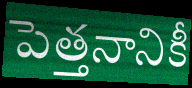
పెత్తనానికీ